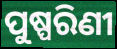
ପୁଷ୍ପରିଣୀ